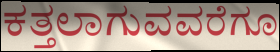
ಕತ್ತಲಾಗುವವರೆಗೂ